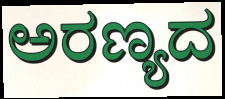
ಅರಣ್ಯದ